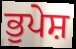
ਭੁਪੇਸ਼